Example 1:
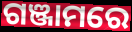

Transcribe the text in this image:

ଗଞ୍ଜାମରେ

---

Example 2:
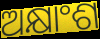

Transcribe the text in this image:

ଅକ୍ଷାଂଶ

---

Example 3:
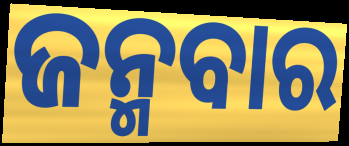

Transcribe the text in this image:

ଜନ୍ମବାର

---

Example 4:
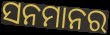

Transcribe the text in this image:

ସନମାନର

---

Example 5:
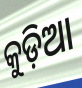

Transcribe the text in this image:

କୁଡ଼ିଆ